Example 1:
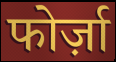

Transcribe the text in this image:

फोर्ज़ा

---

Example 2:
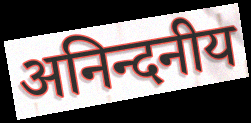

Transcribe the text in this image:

अनिन्दनीय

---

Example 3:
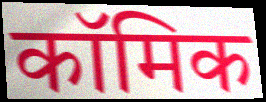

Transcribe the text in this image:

कॉमिक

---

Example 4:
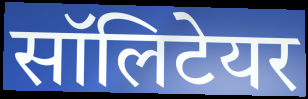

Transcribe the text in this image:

सॉलिटेयर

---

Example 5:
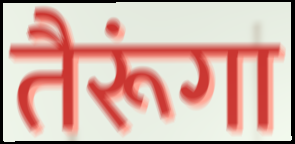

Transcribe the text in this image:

तैरूंगा